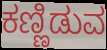
ಕಣ್ಣಿಡುವ